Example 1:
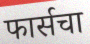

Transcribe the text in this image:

फार्सचा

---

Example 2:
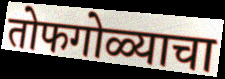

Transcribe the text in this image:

तोफगोळ्याचा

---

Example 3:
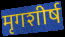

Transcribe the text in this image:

मृगशीर्ष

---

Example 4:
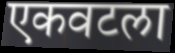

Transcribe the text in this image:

एकवटला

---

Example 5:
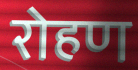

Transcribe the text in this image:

रोहण